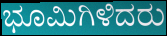
ಭೂಮಿಗಿಳಿದರು